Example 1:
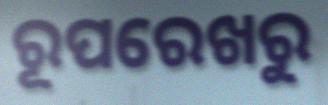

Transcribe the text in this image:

ରୂପରେଖରୁ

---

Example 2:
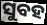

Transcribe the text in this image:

ସୁବହ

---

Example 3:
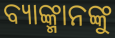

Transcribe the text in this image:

ବ୍ୟାଙ୍କ୍ମାନଙ୍କୁ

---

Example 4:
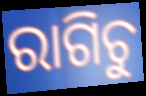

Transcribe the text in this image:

ରାଗିଚୁ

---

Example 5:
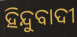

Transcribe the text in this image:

ହିନ୍ଦୁବାଦୀ